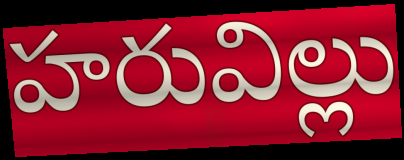
హరువిల్లు